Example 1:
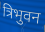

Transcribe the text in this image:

त्रिभुवन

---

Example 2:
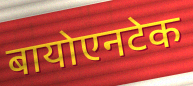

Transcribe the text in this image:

बायोएनटेक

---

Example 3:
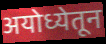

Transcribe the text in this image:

अयोध्येतून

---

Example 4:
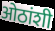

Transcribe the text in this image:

ओठांशी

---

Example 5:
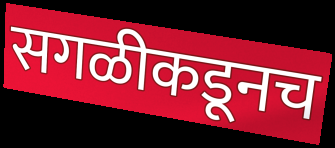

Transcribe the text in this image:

सगळीकडूनच